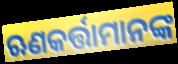
ଋଣକର୍ତ୍ତାମାନଙ୍କ